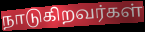
நாடுகிறவர்கள்